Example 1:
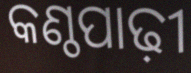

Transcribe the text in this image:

କଣ୍ଠପାଢ଼ୀ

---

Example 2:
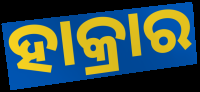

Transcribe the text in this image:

ହାକ୍ରାର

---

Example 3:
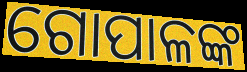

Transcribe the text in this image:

ଗୋପାଳଙ୍କ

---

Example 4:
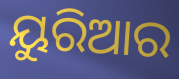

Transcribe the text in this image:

ୟୁରିଆର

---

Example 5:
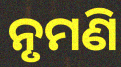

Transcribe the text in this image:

ନୃମଣି